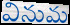
వినుమ